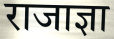
राजाज्ञा